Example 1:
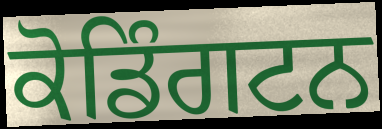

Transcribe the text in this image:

ਕੋਡਿੰਗਟਨ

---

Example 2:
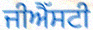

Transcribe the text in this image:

ਜੀਐੱਸਟੀ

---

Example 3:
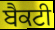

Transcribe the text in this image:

ਬੈਕਟੀ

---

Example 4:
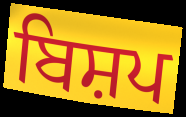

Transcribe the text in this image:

ਬਿਸ਼ਪ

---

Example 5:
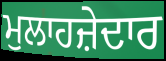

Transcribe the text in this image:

ਮੁਲਾਹਜ਼ੇਦਾਰ